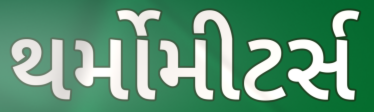
થર્મોમીટર્સ